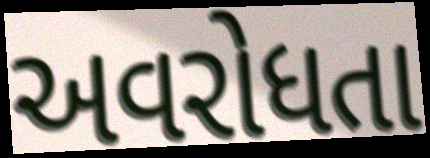
અવરોધતા